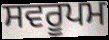
ਸਵਰੂਪਮ